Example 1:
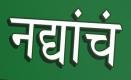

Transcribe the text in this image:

नद्यांचं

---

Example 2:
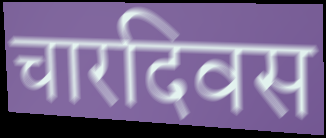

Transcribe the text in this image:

चारदिवस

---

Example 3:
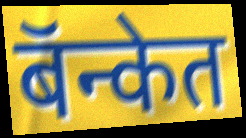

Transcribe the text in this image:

बॅन्केत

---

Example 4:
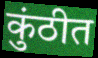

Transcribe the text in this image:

कुंठीत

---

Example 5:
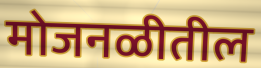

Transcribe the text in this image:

मोजनळीतील